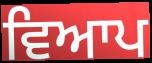
ਵਿਆਪ